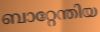
ബാറ്റേന്തിയ